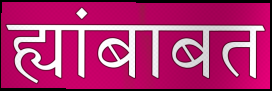
ह्यांबाबत